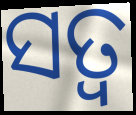
ସତ୍ୱ